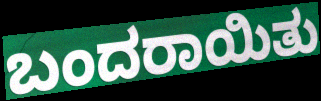
ಬಂದರಾಯಿತು